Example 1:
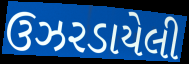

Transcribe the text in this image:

ઉઝરડાયેલી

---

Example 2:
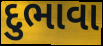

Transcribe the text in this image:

દુભાવા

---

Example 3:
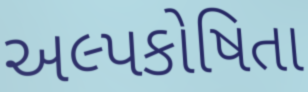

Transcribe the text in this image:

અલ્પકોષિતા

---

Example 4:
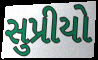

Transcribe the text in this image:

સુપ્રીયો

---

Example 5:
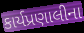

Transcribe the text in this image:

કાર્યપ્રણાલીના